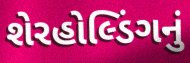
શેરહોલ્ડિંગનું